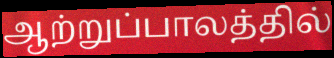
ஆற்றுப்பாலத்தில்